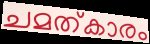
ചമത്കാരം